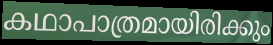
കഥാപാത്രമായിരിക്കും